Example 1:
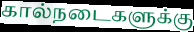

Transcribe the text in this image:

கால்நடைகளுக்கு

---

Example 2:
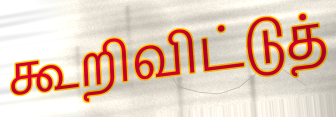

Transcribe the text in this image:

கூறிவிட்டுத்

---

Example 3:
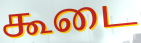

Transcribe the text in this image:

கூடை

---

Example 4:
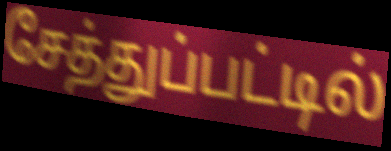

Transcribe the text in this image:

சேத்துப்பட்டில்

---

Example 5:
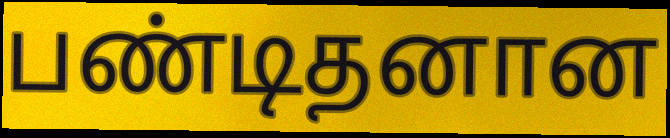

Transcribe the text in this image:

பண்டிதனான